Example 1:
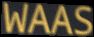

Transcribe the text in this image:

WAAS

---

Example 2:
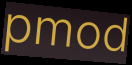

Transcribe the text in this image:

pmod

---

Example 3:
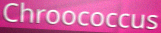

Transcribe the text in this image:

Chroococcus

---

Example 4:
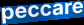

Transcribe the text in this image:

peccare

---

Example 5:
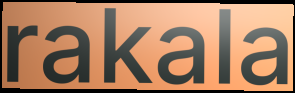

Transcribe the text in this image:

rakala